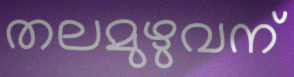
തലമുഴുവന്